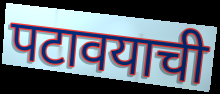
पटावयाची